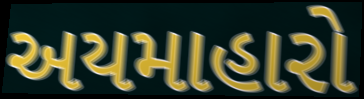
અયમાહારો